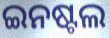
ଇନଷ୍ଟଲ